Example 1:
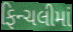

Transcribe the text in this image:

ફિન્ચલીમાં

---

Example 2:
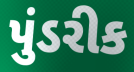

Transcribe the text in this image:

પુંડરીક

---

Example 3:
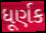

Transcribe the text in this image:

ધૂર્ણક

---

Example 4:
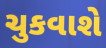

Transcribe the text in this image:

ચુકવાશે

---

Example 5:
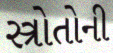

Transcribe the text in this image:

સ્ત્રોતોની